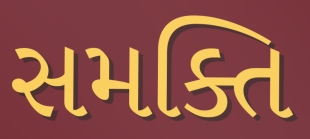
સમક્તિ